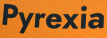
Pyrexia